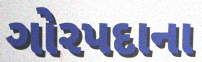
ગોરપદાના